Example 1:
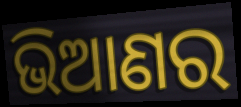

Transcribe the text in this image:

ଭିଆଣର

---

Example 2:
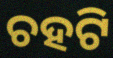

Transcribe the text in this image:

ଚହଟି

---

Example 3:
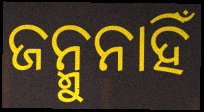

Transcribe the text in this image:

ଜନ୍ମୁନାହିଁ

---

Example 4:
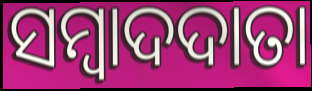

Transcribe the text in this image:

ସମ୍ବାଦଦାତା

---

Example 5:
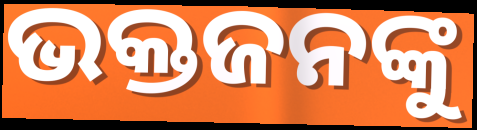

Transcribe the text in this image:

ଭକ୍ତଜନଙ୍କୁ